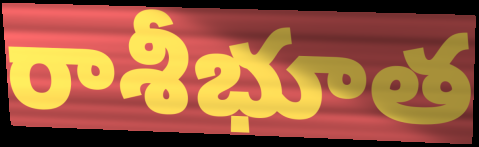
రాశీభూత